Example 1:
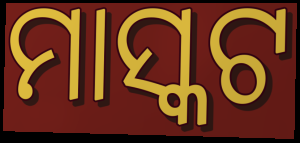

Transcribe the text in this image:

ମାସ୍କଟ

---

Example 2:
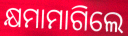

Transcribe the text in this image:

କ୍ଷମାମାଗିଲେ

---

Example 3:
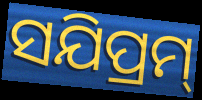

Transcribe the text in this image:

ସଯିପ୍ରମ୍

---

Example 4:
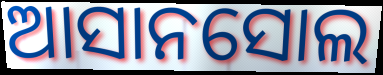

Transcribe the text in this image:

ଆସାନସୋଲ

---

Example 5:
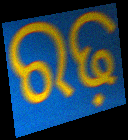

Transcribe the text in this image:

ରଢ଼